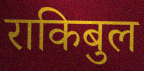
राकिबुल